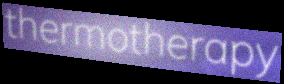
thermotherapy